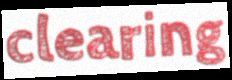
clearing